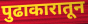
पुढाकारातून